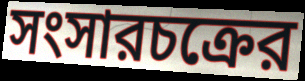
সংসারচক্রের